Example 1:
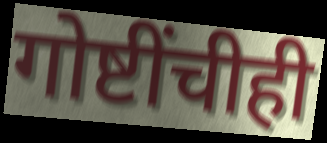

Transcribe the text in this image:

गोष्टींचीही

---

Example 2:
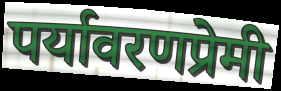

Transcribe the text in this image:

पर्यावरणप्रेमी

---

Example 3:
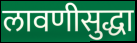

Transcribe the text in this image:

लावणीसुद्धा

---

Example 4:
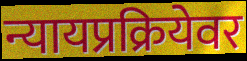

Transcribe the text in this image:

न्यायप्रक्रियेवर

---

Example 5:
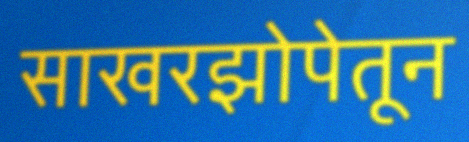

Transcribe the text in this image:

साखरझोपेतून